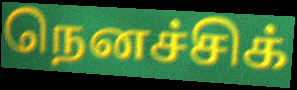
நெனச்சிக்